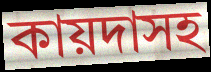
কায়দাসহ